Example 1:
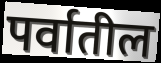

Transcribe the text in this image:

पर्वातील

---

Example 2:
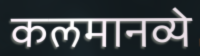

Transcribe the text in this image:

कलमानव्ये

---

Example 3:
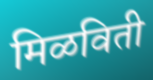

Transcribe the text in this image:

मिळविती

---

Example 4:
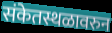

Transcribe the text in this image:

संकेतस्थळावरुन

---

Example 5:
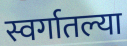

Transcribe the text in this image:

स्वर्गातल्या